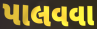
પાલવવા